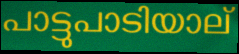
പാട്ടുപാടിയാല്